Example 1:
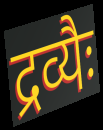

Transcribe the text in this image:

द्रव्यैः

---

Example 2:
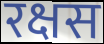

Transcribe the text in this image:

रक्षस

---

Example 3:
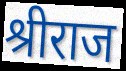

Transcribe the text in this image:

श्रीराज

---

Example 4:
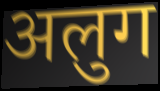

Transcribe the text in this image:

अलुग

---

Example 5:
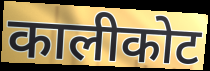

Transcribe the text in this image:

कालीकोट